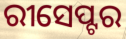
ରୀସେପ୍ଟର